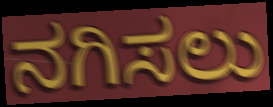
ನಗಿಸಲು